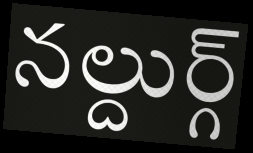
నల్దుర్గ్